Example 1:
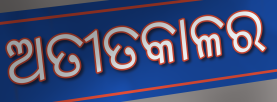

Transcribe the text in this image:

ଅତୀତକାଳର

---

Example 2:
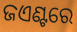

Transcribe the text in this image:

ଜଏଣ୍ଟରେ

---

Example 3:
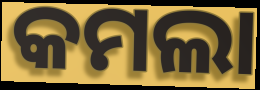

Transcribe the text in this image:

କମଲା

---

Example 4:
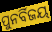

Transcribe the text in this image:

ପୁନର୍ବିଜୟ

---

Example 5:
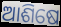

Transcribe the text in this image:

ଆଶିଷେ